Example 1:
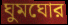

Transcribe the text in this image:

ঘুমঘোর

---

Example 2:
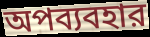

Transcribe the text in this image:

অপব্যবহার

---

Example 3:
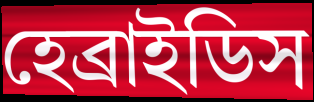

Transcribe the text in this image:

হেব্রাইডিস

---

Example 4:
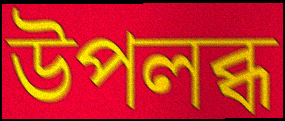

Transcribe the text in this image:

উপলব্ধ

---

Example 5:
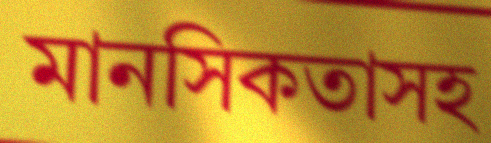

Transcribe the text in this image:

মানসিকতাসহ